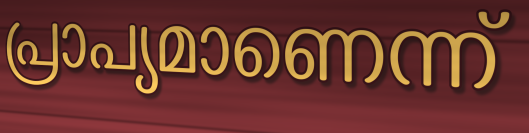
പ്രാപ്യമാണെന്ന്